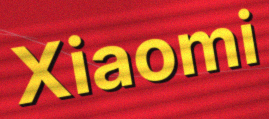
Xiaomi